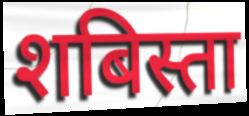
शबिस्ता